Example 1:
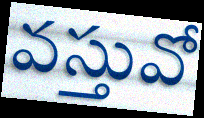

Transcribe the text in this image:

వస్తువో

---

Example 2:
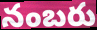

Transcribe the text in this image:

నంబరు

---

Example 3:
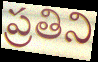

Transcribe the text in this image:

ప్రతిని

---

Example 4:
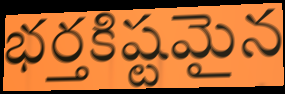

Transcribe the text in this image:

భర్తకిష్టమైన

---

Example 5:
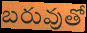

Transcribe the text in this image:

బరువుతో